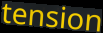
tension